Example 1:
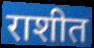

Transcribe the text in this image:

राशीत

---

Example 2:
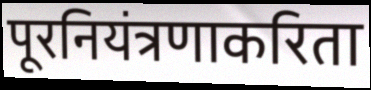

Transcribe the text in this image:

पूरनियंत्रणाकरिता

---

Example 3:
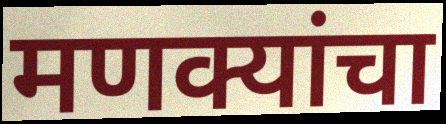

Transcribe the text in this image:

मणक्यांचा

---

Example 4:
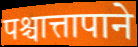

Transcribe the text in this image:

पश्चात्तापाने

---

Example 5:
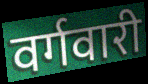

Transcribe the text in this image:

वर्गवारी